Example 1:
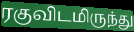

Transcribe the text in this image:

ரகுவிடமிருந்து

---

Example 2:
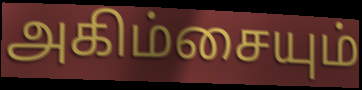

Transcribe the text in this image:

அகிம்சையும்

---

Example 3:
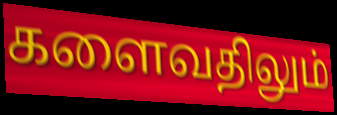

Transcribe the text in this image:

களைவதிலும்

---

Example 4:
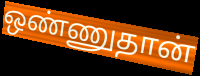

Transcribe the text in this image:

ஒண்ணுதான்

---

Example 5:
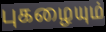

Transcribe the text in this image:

புகழையும்